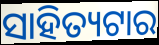
ସାହିତ୍ୟଟାର